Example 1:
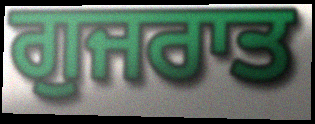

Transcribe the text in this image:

ਗੁਜਰਾਤ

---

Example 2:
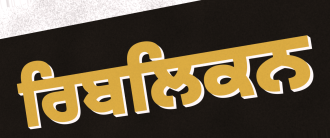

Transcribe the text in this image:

ਰਿਬਲਿਕਨ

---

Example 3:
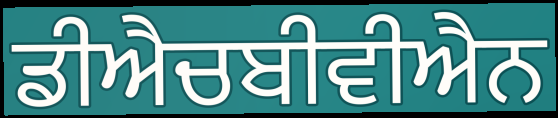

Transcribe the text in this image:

ਡੀਐਚਬੀਵੀਐਨ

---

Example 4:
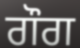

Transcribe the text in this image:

ਗੌਗ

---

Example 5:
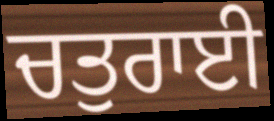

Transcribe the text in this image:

ਚਤੁਰਾਈ